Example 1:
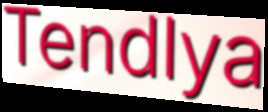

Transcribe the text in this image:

Tendlya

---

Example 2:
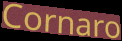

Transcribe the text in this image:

Cornaro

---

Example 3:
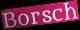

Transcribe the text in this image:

Borsch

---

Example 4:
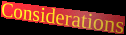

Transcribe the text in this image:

Considerations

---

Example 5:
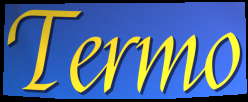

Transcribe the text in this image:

Termo